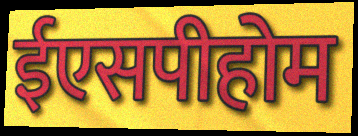
ईएसपीहोम